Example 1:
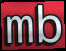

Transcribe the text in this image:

mb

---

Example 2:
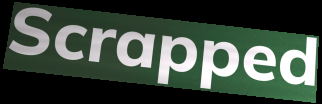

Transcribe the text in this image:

Scrapped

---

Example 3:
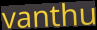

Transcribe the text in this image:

vanthu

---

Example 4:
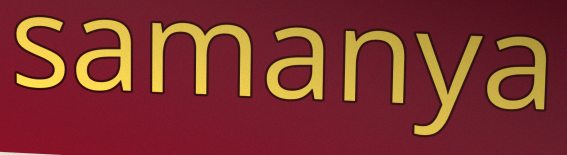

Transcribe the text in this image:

samanya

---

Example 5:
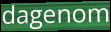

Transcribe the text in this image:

dagenom